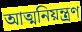
আত্মনিয়ন্ত্ৰণ